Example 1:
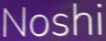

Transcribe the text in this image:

Noshi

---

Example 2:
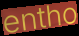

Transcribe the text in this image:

entho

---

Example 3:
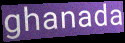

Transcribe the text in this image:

ghanada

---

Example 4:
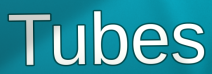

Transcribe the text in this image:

Tubes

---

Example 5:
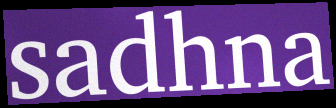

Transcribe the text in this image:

sadhna